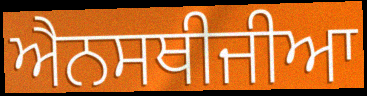
ਐਨਸਥੀਜੀਆ